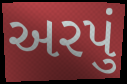
અરપું